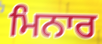
ਮਿਨਾਰ